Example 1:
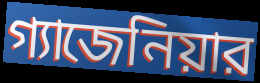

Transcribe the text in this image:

গ্যাজেনিয়ার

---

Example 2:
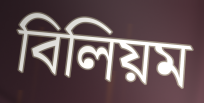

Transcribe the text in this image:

বিলিয়ম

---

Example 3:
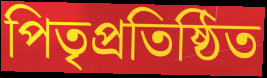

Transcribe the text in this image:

পিতৃপ্রতিষ্ঠিত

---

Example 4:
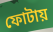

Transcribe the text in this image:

ফোটায়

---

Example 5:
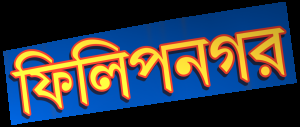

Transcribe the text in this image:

ফিলিপনগর